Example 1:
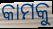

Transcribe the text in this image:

କାମକୁ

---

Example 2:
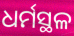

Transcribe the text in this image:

ଧର୍ମସ୍ଥଳ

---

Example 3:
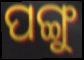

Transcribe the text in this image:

ପଙ୍ଗୁ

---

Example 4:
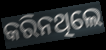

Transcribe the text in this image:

କରିନଥିଲେ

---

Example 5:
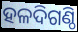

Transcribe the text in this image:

ହଳଦିଗଣ୍ଠି